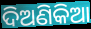
ଦିଅଣିକିଆ